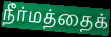
நீர்மத்தைக்